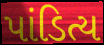
પાંડિત્ય